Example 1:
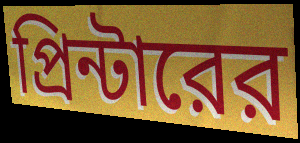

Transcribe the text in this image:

প্রিন্টারের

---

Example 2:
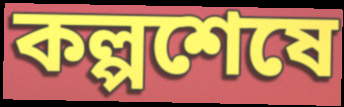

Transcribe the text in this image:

কল্পশেষে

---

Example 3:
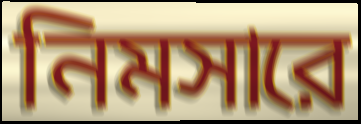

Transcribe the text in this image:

নিমসারে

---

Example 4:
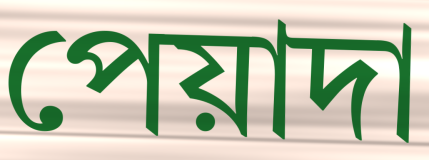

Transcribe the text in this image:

পেয়াদা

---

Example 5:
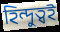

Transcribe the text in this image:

হিন্দুত্বই